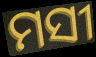
ମସୀ